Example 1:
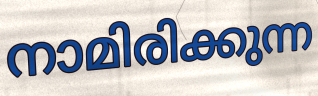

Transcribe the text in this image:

നാമിരിക്കുന്ന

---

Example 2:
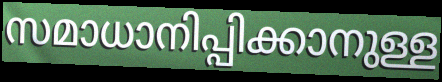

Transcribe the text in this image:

സമാധാനിപ്പിക്കാനുള്ള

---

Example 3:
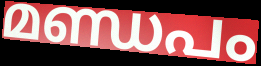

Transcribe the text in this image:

മണ്ഡപം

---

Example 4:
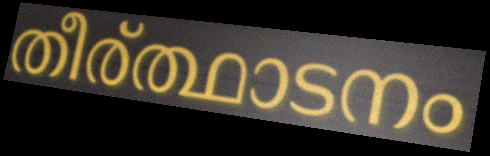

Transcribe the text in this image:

തീര്ത്ഥാടനം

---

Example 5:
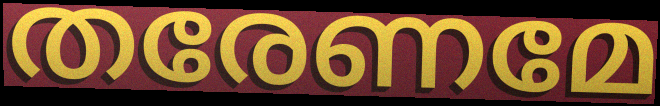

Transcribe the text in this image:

തരേണമേ